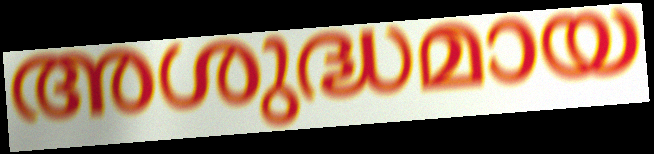
അശുദ്ധമായ